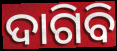
ଦାଗିବି